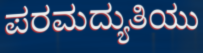
ಪರಮದ್ಯುತಿಯು